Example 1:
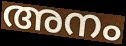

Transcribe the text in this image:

അനം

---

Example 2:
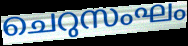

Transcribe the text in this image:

ചെറുസംഘം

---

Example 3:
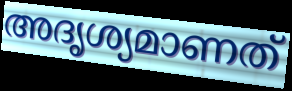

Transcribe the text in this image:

അദൃശ്യമാണത്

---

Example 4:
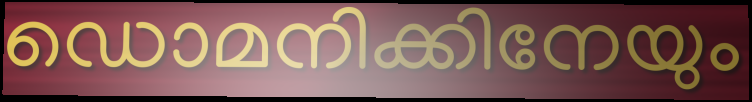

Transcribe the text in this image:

ഡൊമനിക്കിനേയും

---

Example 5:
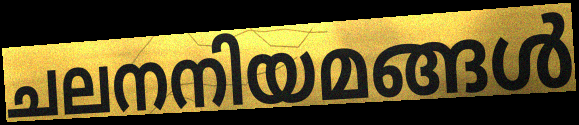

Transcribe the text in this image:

ചലനനിയമങ്ങൾ